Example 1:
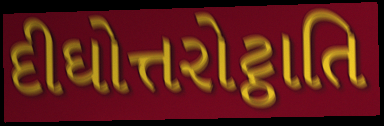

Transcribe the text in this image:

દીઘોત્તરોટ્ઠાતિ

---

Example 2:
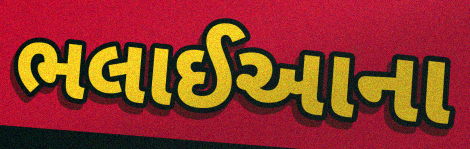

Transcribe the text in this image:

ભલાઈઆના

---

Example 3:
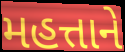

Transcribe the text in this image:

મહત્તાને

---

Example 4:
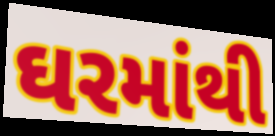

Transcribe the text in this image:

ઘરમાંથી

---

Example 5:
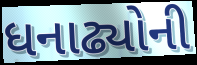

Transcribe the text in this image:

ધનાઢ્યોની